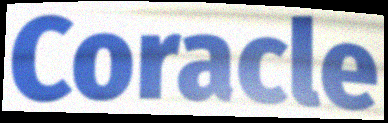
Coracle